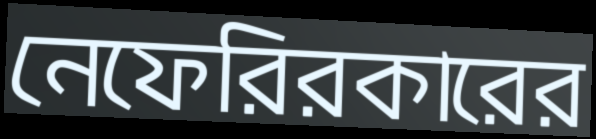
নেফেরিরকারের